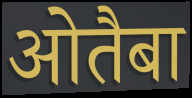
ओतैबा